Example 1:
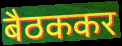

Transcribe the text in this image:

बैठककर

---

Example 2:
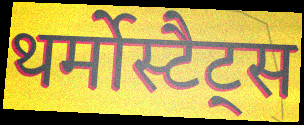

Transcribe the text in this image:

थर्मोस्टैट्स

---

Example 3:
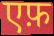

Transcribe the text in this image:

एफ़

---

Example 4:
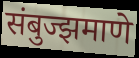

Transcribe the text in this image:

संबुज्झमाणे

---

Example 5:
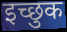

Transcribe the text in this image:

इच्छुक